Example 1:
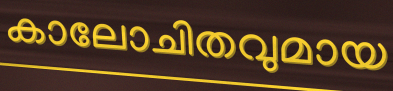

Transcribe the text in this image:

കാലോചിതവുമായ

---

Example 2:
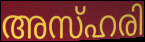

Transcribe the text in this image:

അസ്ഹരി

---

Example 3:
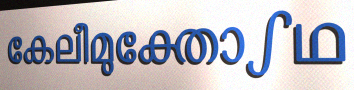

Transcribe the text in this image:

കേലീമുക്തോഽഥ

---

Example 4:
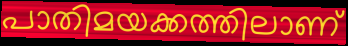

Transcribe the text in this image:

പാതിമയക്കത്തിലാണ്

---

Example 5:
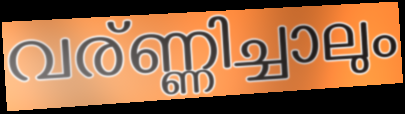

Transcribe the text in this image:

വര്ണ്ണിച്ചാലും